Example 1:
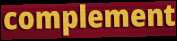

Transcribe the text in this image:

complement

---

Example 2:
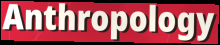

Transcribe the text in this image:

Anthropology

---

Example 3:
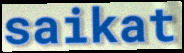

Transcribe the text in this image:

saikat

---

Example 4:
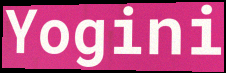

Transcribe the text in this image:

Yogini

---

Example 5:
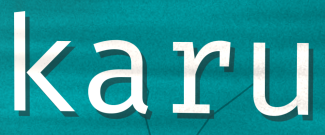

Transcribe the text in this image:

karu